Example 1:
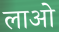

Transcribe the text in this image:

लाओ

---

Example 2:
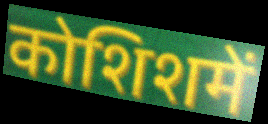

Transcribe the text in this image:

कोशिशमें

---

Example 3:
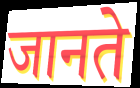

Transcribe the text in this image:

जानते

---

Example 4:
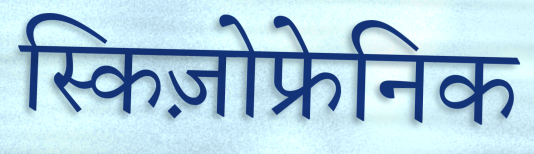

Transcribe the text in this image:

स्किज़ोफ्रेनिक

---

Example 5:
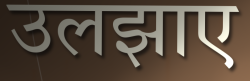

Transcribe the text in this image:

उलझाए